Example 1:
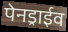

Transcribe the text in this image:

पेनड्राईव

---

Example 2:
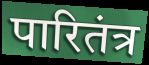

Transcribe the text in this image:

पारितंत्र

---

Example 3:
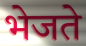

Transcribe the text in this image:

भेजते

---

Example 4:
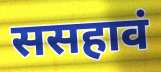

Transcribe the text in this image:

ससहावं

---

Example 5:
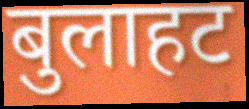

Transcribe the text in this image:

बुलाहट